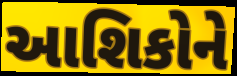
આશિકોને